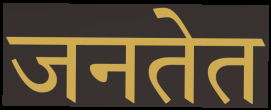
जनतेत